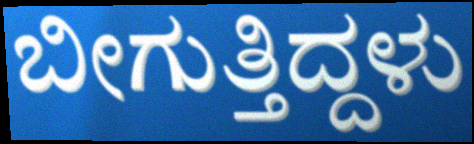
ಬೀಗುತ್ತಿದ್ದಳು